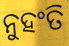
ନୁହଂତି